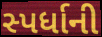
સ્પર્ધાની